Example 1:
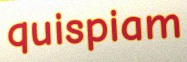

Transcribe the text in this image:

quispiam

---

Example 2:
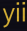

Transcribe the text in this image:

yii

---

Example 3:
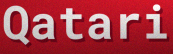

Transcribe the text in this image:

Qatari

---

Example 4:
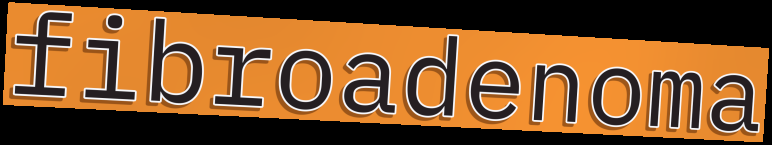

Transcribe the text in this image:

fibroadenoma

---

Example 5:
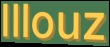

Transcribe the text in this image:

Illouz